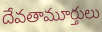
దేవతామూర్తులు